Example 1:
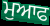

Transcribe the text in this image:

ਮੁਆਫ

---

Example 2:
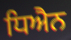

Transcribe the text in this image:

ਧਿਐਨ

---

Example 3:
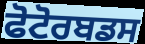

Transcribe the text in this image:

ਫੋਟੋਰਬਡਸ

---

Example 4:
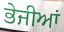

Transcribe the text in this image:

ਭੇਜੀਆਂ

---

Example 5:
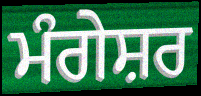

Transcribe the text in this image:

ਮੰਗੇਸ਼ਰ